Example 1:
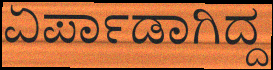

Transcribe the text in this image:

ಏರ್ಪಾಡಾಗಿದ್ದ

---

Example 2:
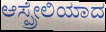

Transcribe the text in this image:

ಆಸ್ಪ್ರೇಲಿಯಾದ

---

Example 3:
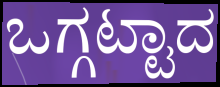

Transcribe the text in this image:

ಒಗ್ಗಟ್ಟಾದ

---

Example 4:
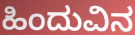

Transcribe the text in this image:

ಹಿಂದುವಿನ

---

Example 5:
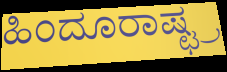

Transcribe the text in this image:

ಹಿಂದೂರಾಷ್ಟ್ರ